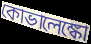
কোভালেঙ্কো